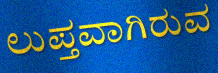
ಲುಪ್ತವಾಗಿರುವ